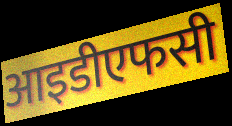
आइडीएफसी